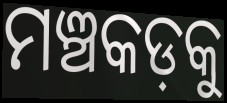
ମଞ୍ଚକଡ଼କୁ